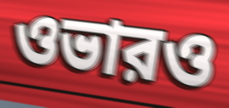
ওভারও